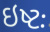
ઇષ્ટઃ